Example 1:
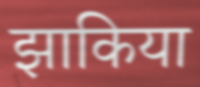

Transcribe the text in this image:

झाकिया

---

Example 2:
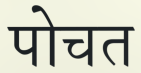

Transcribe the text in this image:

पोचत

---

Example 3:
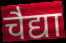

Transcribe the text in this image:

चैद्या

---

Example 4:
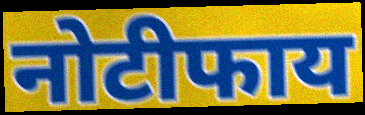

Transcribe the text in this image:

नोटीफाय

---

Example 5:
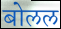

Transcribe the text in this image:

बोलल